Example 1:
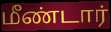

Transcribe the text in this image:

மீண்டார்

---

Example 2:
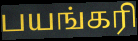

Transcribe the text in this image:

பயங்கரி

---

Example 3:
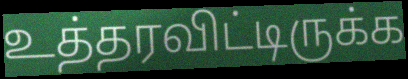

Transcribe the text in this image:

உத்தரவிட்டிருக்க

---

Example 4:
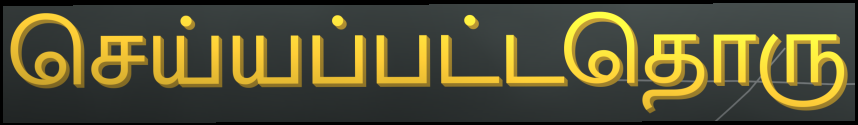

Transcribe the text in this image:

செய்யப்பட்டதொரு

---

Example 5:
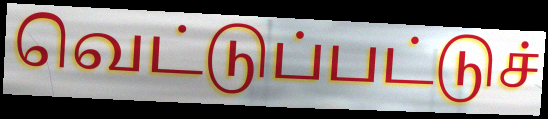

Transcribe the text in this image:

வெட்டுப்பட்டுச்